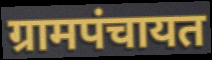
ग्रामपंचायत